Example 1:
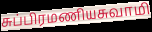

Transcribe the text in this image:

சுப்பிரமணியசுவாமி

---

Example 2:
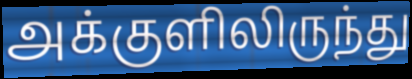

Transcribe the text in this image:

அக்குளிலிருந்து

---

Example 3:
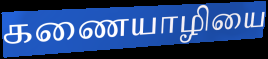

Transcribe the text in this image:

கணையாழியை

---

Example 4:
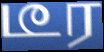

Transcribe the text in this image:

டீர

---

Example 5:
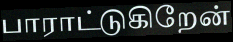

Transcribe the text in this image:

பாராட்டுகிறேன்